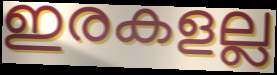
ഇരകളല്ല